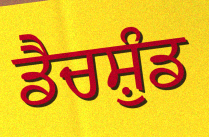
ਡੈਚਸ਼ੁੰਡ